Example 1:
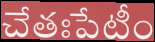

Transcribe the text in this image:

చేతఃపేటీం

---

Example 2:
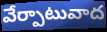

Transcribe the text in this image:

వేర్పాటువాద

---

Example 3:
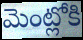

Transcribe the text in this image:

మెంట్లోకి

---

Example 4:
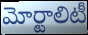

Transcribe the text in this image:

మోర్టాలిటీ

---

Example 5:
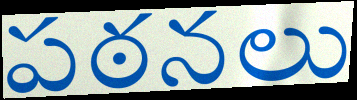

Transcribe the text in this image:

పఠనలు